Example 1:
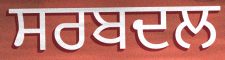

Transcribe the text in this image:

ਸਰਬਦਲ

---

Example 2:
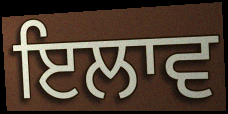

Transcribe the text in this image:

ਇਲਾਵ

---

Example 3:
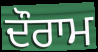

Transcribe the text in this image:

ਦੌਰਾਮ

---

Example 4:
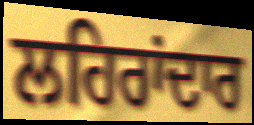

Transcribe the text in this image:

ਲਹਿਰਾਂਦਾਰ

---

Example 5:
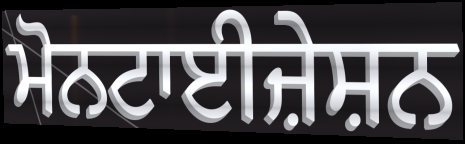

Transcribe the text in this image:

ਮੋਨਟਾਈਜ਼ੇਸ਼ਨ